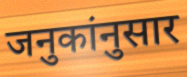
जनुकांनुसार